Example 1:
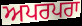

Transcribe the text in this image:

ਅਪਰਪਰਾ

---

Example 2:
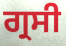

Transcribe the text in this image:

ਗ੍ਰਸੀ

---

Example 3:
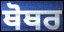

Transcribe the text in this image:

ਥੋਥਰ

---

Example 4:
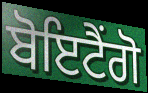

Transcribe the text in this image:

ਬੋਇਟੈਂਗੋ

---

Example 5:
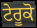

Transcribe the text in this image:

ਟੇਰੂਕੋ